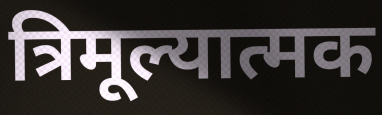
त्रिमूल्यात्मक